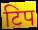
टिप